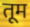
तूम